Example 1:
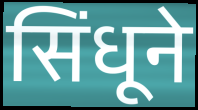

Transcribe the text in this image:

सिंधूने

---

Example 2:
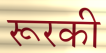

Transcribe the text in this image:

रूरकी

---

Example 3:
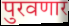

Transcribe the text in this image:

पुरवणार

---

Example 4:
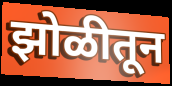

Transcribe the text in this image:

झोळीतून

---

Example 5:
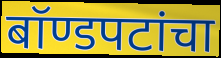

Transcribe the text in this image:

बॉण्डपटांचा